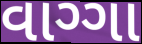
વાગ્ગા